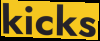
kicks